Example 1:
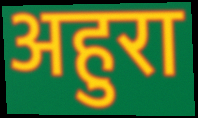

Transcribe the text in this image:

अहुरा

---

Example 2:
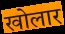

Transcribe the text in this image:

खोलार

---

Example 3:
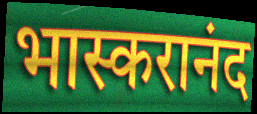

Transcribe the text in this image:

भास्करानंद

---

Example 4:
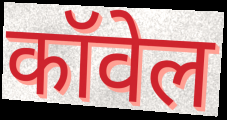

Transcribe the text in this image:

कॉवेल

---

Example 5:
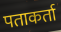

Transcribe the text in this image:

पताकर्ता